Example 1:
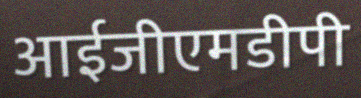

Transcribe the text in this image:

आईजीएमडीपी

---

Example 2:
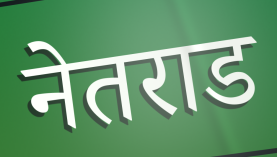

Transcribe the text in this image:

नेतराड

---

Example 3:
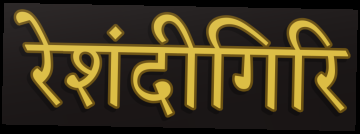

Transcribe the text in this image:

रेशंदीगिरि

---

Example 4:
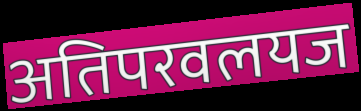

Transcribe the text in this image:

अतिपरवलयज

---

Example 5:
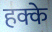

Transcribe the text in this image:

हक्के